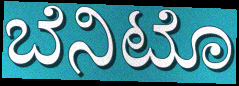
ಬೆನಿಟೊ